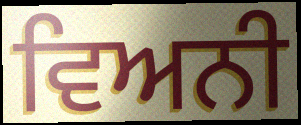
ਵਿਅਨੀ